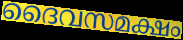
ദൈവസമക്ഷം